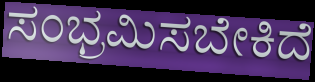
ಸಂಭ್ರಮಿಸಬೇಕಿದೆ